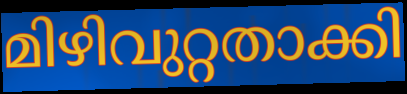
മിഴിവുറ്റതാക്കി